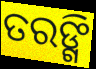
ତରଙ୍ଗି